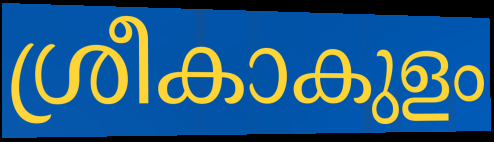
ശ്രീകാകുളം